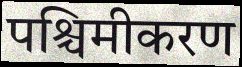
पश्चिमीकरण